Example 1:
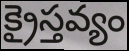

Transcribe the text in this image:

క్రైస్తవ్యం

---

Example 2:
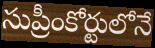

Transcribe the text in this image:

సుప్రీంకోర్టులోనే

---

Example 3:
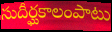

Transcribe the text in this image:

సుదీర్ఘకాలంపాటు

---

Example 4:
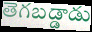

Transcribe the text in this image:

తెగబడ్డాడు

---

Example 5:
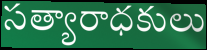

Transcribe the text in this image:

సత్యారాధకులు